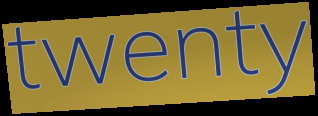
twenty